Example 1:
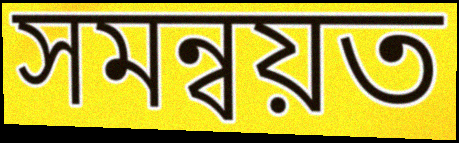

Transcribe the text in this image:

সমন্বয়ত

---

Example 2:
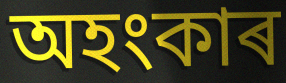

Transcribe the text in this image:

অহংকাৰ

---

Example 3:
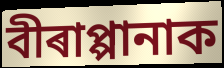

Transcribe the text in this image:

বীৰাপ্পানাক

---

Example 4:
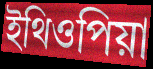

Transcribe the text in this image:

ইথিওপিয়া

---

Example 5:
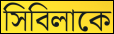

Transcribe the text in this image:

সিবিলাকে